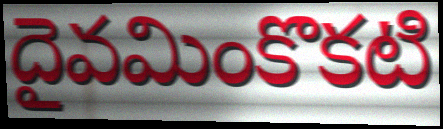
దైవమింకొకటి